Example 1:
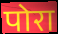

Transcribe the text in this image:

पोरा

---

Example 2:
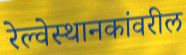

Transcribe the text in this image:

रेल्वेस्थानकांवरील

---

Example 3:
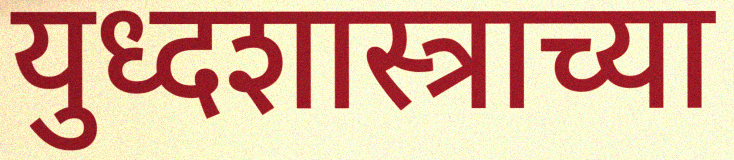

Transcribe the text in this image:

युध्दशास्त्राच्या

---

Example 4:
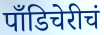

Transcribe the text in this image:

पाँडिचेरीचं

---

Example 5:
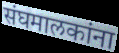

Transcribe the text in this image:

संघमालकांना